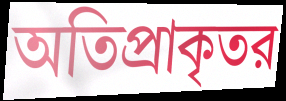
অতিপ্রাকৃতর